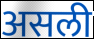
असली